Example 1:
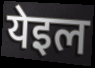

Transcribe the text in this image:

येइल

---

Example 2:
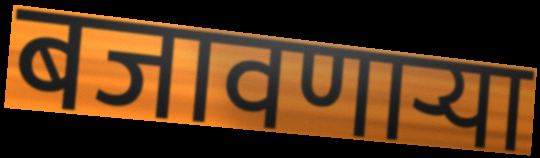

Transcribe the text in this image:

बजावणाऱ्या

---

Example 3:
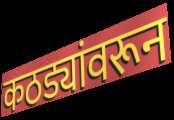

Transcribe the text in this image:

कठड्यांवरून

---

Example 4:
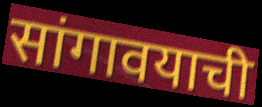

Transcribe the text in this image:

सांगावयाची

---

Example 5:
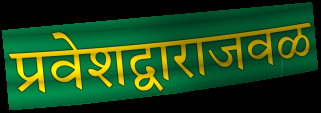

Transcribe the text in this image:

प्रवेशद्वाराजवळ